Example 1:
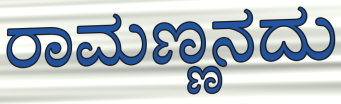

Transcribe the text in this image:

ರಾಮಣ್ಣನದು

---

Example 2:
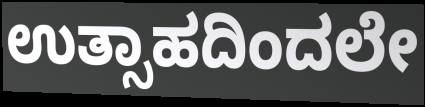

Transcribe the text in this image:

ಉತ್ಸಾಹದಿಂದಲೇ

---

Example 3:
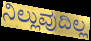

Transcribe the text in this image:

ನಿಲ್ಲುವುದಿಲ್ಲ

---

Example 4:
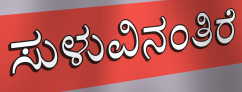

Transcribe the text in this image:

ಸುಳುವಿನಂತಿರೆ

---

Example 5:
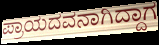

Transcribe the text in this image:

ಪ್ರಾಯದವನಾಗಿದ್ದಾಗ